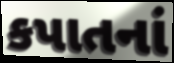
કપાતનાં